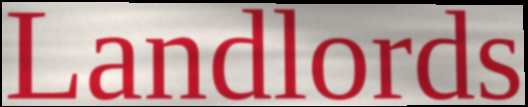
Landlords